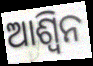
ଆଶ୍ୱିନ